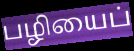
பழியைப்